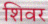
शिवर